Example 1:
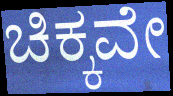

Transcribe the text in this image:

ಚಿಕ್ಕವೇ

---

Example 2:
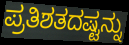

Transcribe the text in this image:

ಪ್ರತಿಶತದಷ್ಟನ್ನು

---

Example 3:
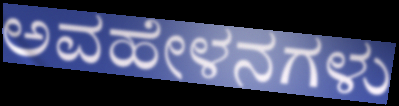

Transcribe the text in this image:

ಅವಹೇಳನಗಳು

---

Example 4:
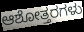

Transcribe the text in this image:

ಆಶೋತ್ತರಗಳು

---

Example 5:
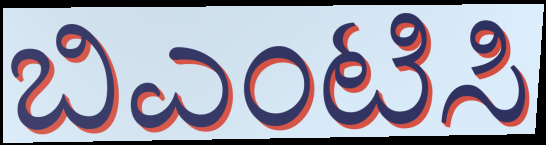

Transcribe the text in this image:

ಬಿಎಂಟಿಸಿ